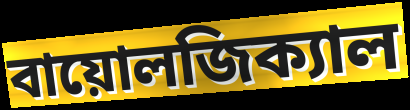
বায়োলজিক্যাল